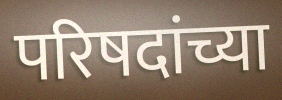
परिषदांच्या